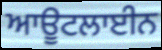
ਆਊਟਲਾਈਨ